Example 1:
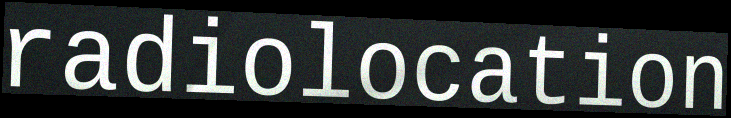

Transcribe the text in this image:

radiolocation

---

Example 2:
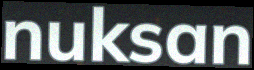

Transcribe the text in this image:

nuksan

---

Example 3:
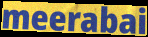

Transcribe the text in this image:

meerabai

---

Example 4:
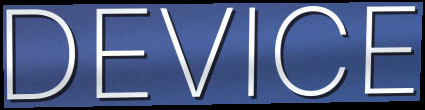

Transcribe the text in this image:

DEVICE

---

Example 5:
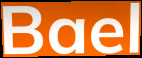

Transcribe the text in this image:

Bael